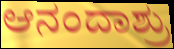
ಆನಂದಾಶ್ರು